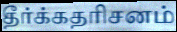
தீர்க்கதரிசனம்